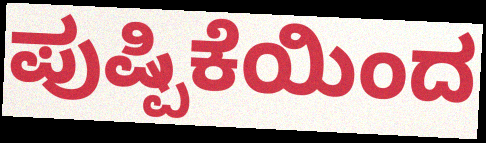
ಪುಷ್ಪಿಕೆಯಿಂದ